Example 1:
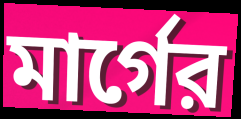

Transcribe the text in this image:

মার্গের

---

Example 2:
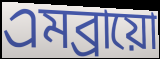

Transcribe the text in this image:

এমব্রায়ো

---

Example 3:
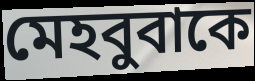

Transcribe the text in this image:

মেহবুবাকে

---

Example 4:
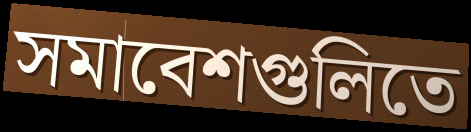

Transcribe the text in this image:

সমাবেশগুলিতে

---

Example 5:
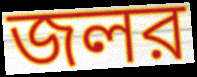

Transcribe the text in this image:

জলর